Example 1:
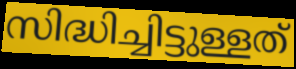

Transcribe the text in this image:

സിദ്ധിച്ചിട്ടുള്ളത്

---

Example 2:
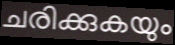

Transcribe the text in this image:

ചരിക്കുകയും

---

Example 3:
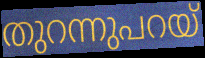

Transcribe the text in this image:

തുറന്നുപറയ്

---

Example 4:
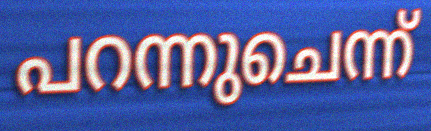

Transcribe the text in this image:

പറന്നുചെന്ന്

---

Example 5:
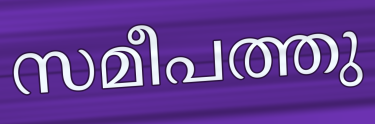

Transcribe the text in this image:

സമീപത്തു